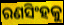
ରଣସିଂହକୁ